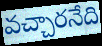
వచ్చారనేది